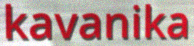
kavanika